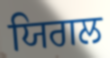
ਯਿਗਲ